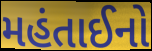
મહંતાઈનો